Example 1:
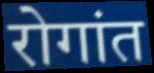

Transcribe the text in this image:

रोगांत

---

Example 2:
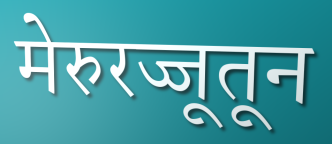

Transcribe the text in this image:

मेरुरज्जूतून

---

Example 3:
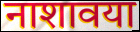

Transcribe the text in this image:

नाशावया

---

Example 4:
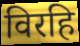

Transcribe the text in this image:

विरहि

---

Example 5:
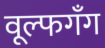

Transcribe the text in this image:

वूल्फगँग